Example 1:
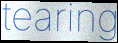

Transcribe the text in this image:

tearing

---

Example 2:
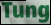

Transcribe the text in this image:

Tung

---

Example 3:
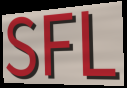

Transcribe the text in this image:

SFL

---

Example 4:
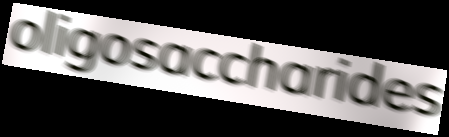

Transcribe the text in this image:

oligosaccharides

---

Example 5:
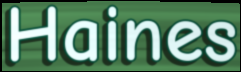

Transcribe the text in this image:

Haines